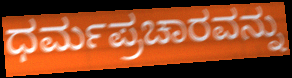
ಧರ್ಮಪ್ರಚಾರವನ್ನು